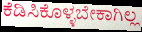
ಕೆಡಿಸಿಕೊಳ್ಳಬೇಕಾಗಿಲ್ಲ